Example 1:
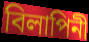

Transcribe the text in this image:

বিলাপিনী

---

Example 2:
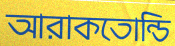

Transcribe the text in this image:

আরাকতোন্ডি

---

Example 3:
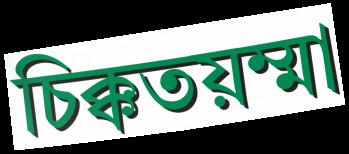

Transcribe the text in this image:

চিক্কতয়ম্মা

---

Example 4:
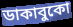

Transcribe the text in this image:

ডাকাবুকো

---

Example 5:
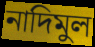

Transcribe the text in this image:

নাদিমুল